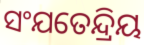
ସଂଯତେନ୍ଦ୍ରିୟ